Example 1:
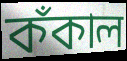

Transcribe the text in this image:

কঁকাল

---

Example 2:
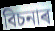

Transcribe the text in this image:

বিচনাৰ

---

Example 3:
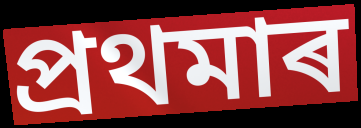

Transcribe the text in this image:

প্ৰথমাৰ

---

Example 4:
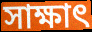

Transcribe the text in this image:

সাক্ষাৎ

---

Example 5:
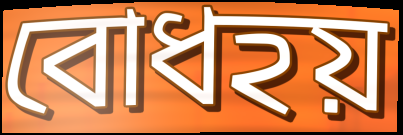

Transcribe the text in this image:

বোধহয়